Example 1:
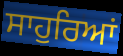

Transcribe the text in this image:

ਸਾਹੁਰਿਆਂ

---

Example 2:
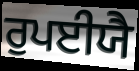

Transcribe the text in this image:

ਰੁਪਈਯੈ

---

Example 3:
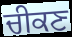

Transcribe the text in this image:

ਚੀਕਣ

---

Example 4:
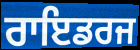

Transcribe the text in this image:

ਰਾਇਡਰਜ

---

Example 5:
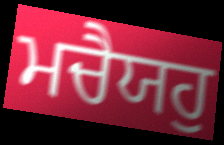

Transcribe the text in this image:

ਮਚੈਯਹੁ